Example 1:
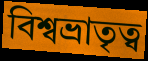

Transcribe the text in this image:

বিশ্বভ্রাতৃত্ব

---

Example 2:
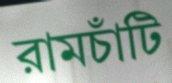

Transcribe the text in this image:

রামচাঁটি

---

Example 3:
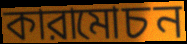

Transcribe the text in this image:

কারামোচন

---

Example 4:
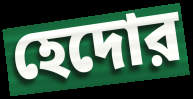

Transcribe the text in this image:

হেদোর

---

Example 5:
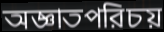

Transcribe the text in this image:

অজ্ঞাতপরিচয়